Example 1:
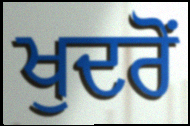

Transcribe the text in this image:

ਖੁਦਰੋਂ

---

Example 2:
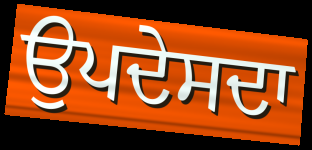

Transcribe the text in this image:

ਉਪਦੇਸਦਾ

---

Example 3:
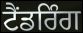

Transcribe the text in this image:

ਟੈਂਡਰਿੰਗ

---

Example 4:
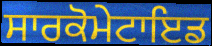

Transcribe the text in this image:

ਸਾਰਕੋਮੇਟਾਇਡ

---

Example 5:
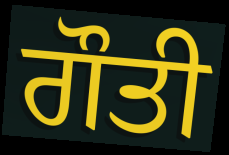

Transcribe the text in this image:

ਗੌਤੀ